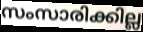
സംസാരിക്കില്ല